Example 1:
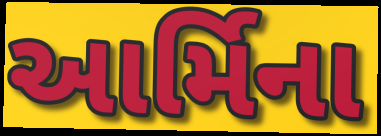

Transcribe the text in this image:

આર્મિના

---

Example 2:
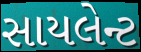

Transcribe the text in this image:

સાયલેન્ટ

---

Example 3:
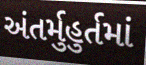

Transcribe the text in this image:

અંતર્મુહુર્તમાં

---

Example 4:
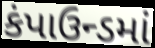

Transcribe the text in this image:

કંપાઉન્ડમાં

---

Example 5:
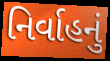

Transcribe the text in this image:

નિર્વાહનું